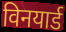
विनयार्ड